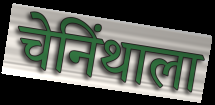
चेनिंथाला